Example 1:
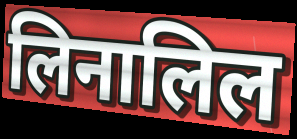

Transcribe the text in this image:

लिनालिल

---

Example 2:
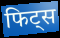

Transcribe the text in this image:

फिट्स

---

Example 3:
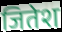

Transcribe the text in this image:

जितेश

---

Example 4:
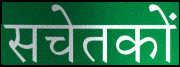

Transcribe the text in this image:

सचेतकों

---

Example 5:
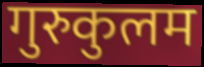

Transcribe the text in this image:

गुरुकुलम